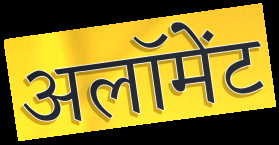
अलॉमेंट